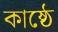
কাষ্ঠে